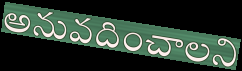
అనువదించాలని